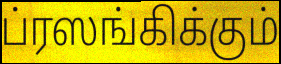
ப்ரஸங்கிக்கும்